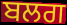
ਬਲਗ